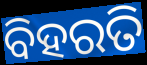
ବିହରତି